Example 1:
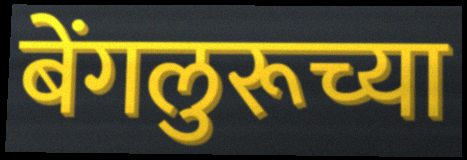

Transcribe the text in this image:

बेंगलुरूच्या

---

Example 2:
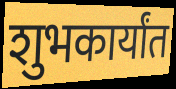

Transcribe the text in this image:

शुभकार्यांत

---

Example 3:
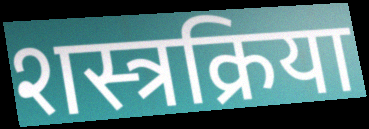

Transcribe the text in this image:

शस्त्रक्रिया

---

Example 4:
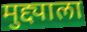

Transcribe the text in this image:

मुद्द्याला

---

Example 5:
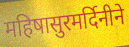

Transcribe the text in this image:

महिषासुरमर्दिनीने